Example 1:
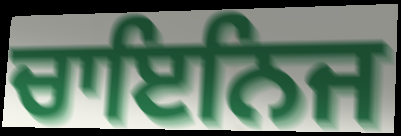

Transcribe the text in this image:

ਚਾਇਨਿਜ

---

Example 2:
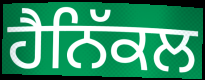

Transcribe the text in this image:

ਹੈਨਿੱਕਲ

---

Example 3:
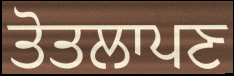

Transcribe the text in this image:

ਤੋਤਲਾਪਣ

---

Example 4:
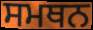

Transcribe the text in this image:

ਸਮਥਨ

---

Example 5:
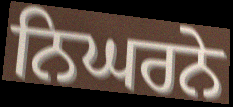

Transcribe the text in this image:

ਨਿਘਰਨੇ